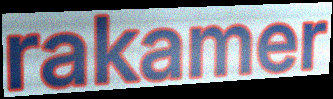
rakamer